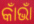
କାଁଭାଁ